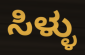
ಸಿಳ್ಳು